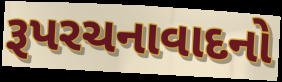
રૂપરચનાવાદનો